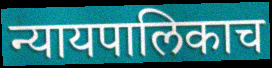
न्यायपालिकाच